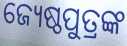
ଜ୍ୟେଷ୍ଠପୁତ୍ରଙ୍କ